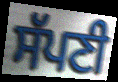
ਸੱਪਣੀ